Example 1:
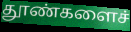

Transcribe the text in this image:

தூண்களைச்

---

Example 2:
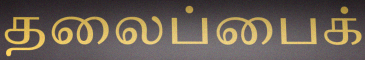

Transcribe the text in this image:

தலைப்பைக்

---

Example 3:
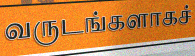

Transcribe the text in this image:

வருடங்களாகச்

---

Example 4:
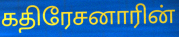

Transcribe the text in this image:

கதிரேசனாரின்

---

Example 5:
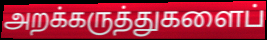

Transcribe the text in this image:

அறக்கருத்துகளைப்